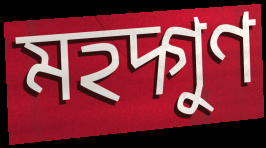
মহদ্গুণ